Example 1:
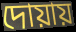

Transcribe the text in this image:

দোয়ায়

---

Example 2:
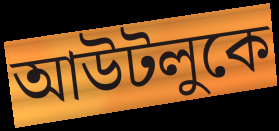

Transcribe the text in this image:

আউটলুকে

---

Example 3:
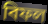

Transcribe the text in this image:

বিফল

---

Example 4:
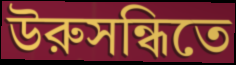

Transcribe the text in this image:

উরুসন্ধিতে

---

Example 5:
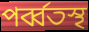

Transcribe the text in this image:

পর্ব্বতস্থ